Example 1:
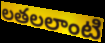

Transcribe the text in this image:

లతలలాంటి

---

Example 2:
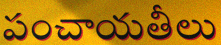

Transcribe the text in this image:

పంచాయతీలు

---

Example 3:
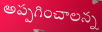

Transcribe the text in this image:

అప్పగించాలన్న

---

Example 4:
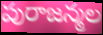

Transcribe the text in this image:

పురాజన్మల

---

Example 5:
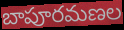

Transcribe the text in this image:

బాపూరమణల